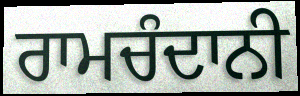
ਰਾਮਚੰਦਾਨੀ